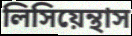
লিসিয়েন্থাস